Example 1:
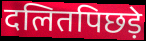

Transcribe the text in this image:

दलितपिछड़े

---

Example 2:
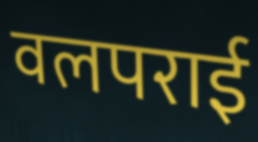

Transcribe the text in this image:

वलपराई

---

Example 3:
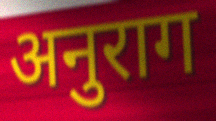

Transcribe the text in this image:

अनुराग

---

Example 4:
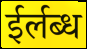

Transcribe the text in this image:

ईर्लब्ध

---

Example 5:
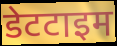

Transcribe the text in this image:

डेटटाइम